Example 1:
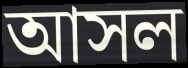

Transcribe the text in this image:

আসল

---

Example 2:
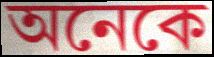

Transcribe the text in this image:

অনেকে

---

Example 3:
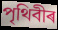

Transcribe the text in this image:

পৃথিবীৰ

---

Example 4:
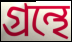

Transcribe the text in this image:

গ্ৰন্থে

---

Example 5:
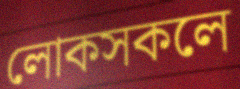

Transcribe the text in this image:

লোকসকলে